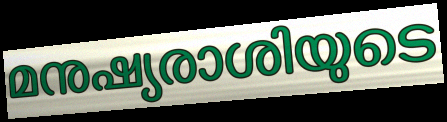
മനുഷ്യരാശിയുടെ